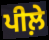
ਪੀਲ਼ੇ